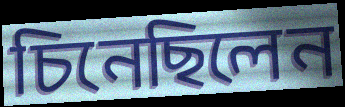
চিনেছিলেন